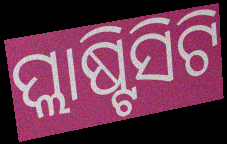
ପ୍ଲାଷ୍ଟିସିଟି